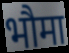
भौमा